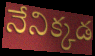
నేనిక్కడ